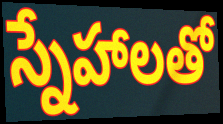
స్నేహాలతో